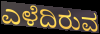
ಎಳೆದಿರುವ